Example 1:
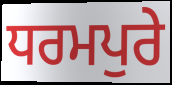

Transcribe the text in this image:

ਧਰਮਪੁਰੇ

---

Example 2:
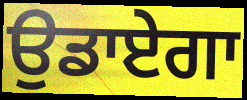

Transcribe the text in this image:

ਉਡਾਏਗਾ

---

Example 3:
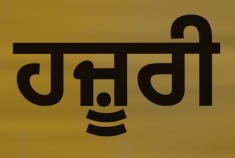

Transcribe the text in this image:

ਹਜ਼ੂਰੀ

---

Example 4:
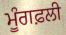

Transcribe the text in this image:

ਮੂੰਗਫ਼ਲੀ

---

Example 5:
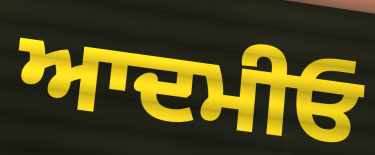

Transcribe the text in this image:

ਆਦਮੀਓ